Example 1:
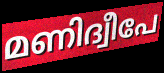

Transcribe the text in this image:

മണിദ്വീപേ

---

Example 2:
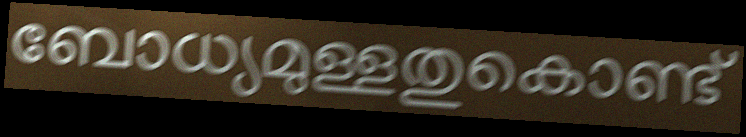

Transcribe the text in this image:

ബോധ്യമുള്ളതുകൊണ്ട്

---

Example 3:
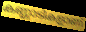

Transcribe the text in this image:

കണ്ണാടികളാണ്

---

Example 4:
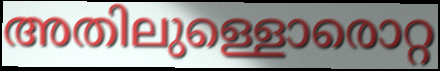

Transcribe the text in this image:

അതിലുള്ളൊരൊറ്റ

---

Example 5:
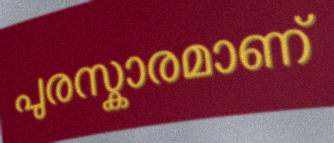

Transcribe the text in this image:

പുരസ്കാരമാണ്